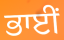
ਭਾਈੰ